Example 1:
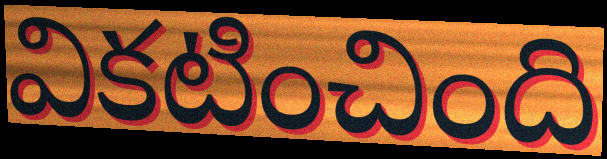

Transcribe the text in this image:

వికటించింది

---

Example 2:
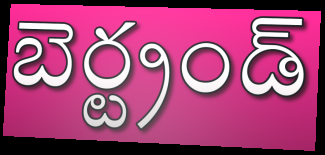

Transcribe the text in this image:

బెర్ట్రండ్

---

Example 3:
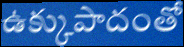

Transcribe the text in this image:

ఉక్కుపాదంతో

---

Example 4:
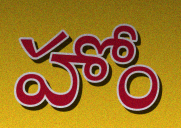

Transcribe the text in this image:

హోం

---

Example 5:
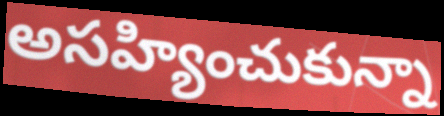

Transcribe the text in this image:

అసహ్యించుకున్నా